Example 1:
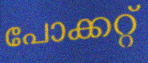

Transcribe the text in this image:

പോക്കറ്റ്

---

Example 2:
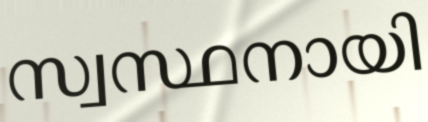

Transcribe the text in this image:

സ്വസ്ഥനായി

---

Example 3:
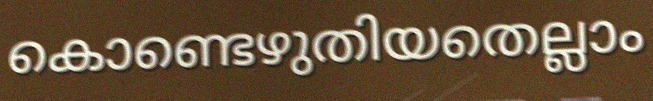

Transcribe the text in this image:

കൊണ്ടെഴുതിയതെല്ലാം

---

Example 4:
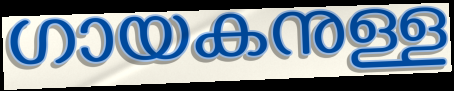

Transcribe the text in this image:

ഗായകനുള്ള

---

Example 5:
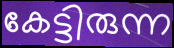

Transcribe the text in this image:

കേട്ടിരുന്ന